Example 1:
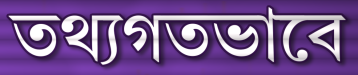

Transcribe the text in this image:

তথ্যগতভাবে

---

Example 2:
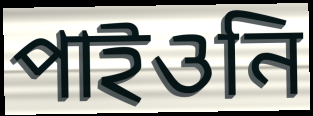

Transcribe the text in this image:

পাইওনি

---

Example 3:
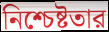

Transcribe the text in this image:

নিশ্চেষ্টতার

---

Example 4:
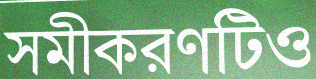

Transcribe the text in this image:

সমীকরণটিও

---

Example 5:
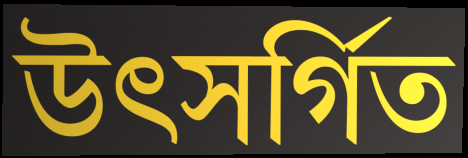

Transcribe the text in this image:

উৎসর্গিত